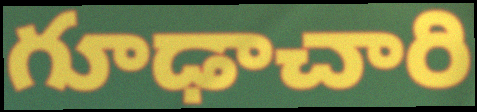
గూఢాచారి